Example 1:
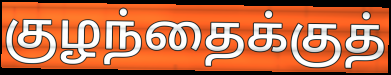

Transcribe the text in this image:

குழந்தைக்குத்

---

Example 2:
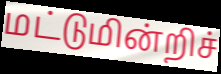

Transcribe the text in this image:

மட்டுமின்றிச்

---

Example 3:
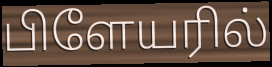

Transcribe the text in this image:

பிளேயரில்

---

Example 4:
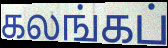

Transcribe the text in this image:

கலங்கப்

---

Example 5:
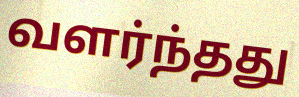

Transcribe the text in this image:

வளர்ந்தது